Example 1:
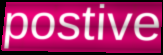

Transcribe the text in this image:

postive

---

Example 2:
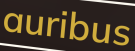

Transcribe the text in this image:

auribus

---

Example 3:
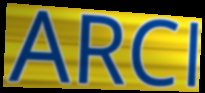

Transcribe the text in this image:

ARCI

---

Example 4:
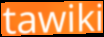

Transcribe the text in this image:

tawiki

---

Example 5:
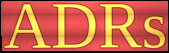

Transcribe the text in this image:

ADRs